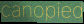
canopied